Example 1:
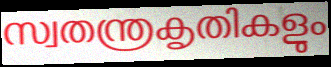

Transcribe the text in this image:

സ്വതന്ത്രകൃതികളും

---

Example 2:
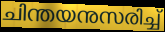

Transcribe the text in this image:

ചിന്തയനുസരിച്ച്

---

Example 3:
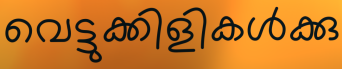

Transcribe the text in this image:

വെട്ടുക്കിളികൾക്കു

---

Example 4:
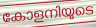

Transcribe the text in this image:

കോളനിയുടെ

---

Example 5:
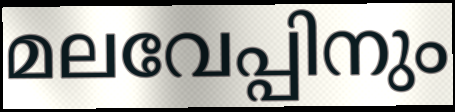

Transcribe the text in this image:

മലവേപ്പിനും